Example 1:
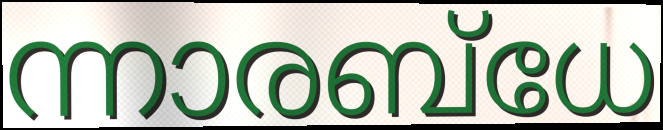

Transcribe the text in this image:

ന്നാരബ്ധേ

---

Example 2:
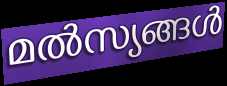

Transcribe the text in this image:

മൽസ്യങ്ങൾ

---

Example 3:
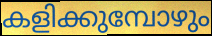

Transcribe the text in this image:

കളിക്കുമ്പോഴും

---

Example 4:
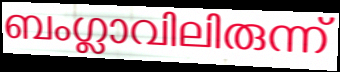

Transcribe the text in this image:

ബംഗ്ലാവിലിരുന്ന്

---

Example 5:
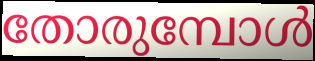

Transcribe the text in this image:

തോരുമ്പോൾ